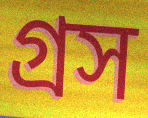
গ্রস